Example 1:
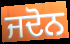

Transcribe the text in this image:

ਜਦੋਨ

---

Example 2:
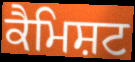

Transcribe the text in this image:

ਕੈਮਿਸ਼ਟ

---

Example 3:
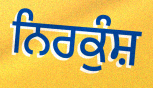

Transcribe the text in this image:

ਨਿਰਕੁੰਸ਼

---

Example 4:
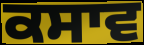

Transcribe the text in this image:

ਕਸਾਵ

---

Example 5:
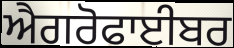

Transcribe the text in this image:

ਐਗਰੋਫਾਈਬਰ